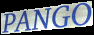
PANGO